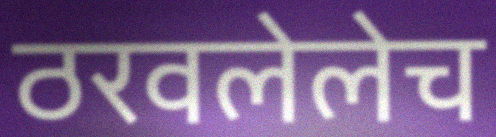
ठरवलेलेच